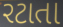
રટાતા